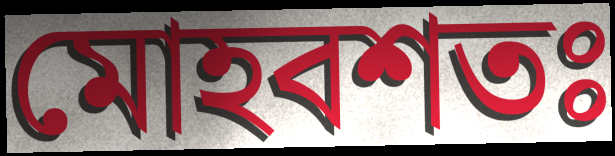
মোহবশতঃ